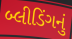
બ્લીડિંગનું